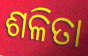
ଶଳିତା